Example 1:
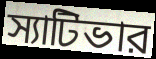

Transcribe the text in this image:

স্যাটিভার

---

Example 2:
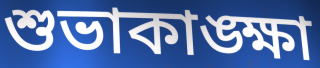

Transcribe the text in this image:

শুভাকাঙ্ক্ষা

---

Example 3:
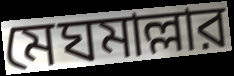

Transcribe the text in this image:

মেঘমাল্লার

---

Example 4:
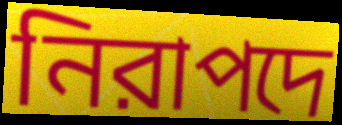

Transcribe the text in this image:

নিরাপদে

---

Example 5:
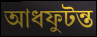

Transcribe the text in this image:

আধফুটন্ত